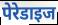
पेरेडाइज